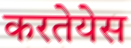
करतेयेस